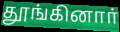
தூங்கினார்